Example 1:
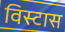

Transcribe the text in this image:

विस्टास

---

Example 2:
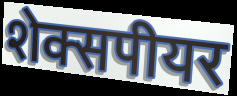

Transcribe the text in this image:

शेक्सपीयर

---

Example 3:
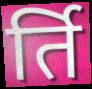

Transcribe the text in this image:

र्ति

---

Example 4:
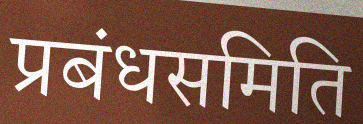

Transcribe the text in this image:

प्रबंधसमिति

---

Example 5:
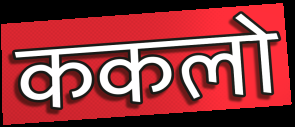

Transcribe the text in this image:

ककलो